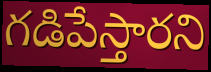
గడిపేస్తారని